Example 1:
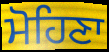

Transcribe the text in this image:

ਮੋਹਿਣਾ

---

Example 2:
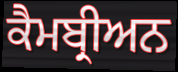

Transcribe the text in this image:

ਕੈਮਬ੍ਰੀਅਨ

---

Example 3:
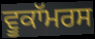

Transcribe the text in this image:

ਵੂਕਾੱਮਰਸ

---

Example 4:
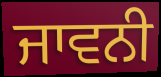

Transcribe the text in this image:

ਜਾਵਨੀ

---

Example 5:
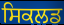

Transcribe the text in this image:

ਸਿਕਲਡ